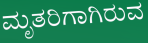
ಮೃತರಿಗಾಗಿರುವ